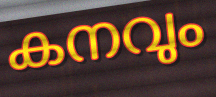
കനവും